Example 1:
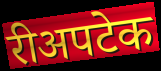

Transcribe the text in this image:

रीअपटेक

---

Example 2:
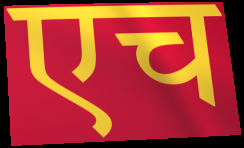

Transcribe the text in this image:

एच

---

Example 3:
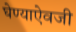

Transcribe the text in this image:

घेण्याऐवजी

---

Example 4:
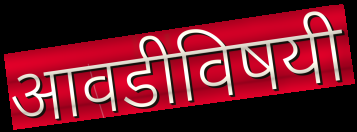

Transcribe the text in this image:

आवडीविषयी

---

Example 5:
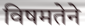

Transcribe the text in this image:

विषमतेने